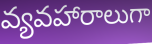
వ్యవహారాలుగా